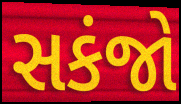
સકંજો